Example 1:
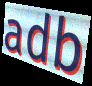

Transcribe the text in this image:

adb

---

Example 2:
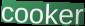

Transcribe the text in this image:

cooker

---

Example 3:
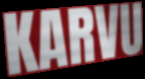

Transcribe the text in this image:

KARVU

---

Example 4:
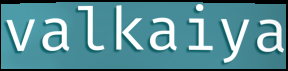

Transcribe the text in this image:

valkaiya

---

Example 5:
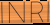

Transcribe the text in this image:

INRI